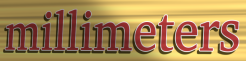
millimeters